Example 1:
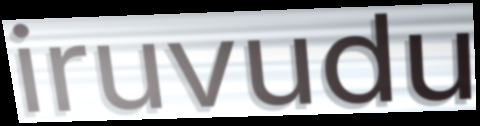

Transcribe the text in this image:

iruvudu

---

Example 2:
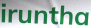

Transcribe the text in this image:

iruntha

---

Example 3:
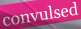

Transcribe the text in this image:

convulsed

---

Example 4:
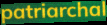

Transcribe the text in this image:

patriarchal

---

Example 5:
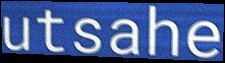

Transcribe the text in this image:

utsahe